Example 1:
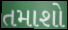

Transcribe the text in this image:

તમાશો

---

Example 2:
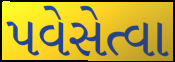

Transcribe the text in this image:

પવેસેત્વા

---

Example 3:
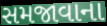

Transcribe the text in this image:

સમજાવાના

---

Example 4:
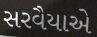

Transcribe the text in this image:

સરવૈયાએ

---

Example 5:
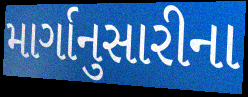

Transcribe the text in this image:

માર્ગાનુસારીના